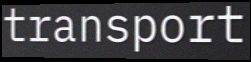
transport